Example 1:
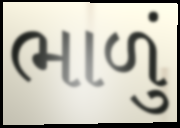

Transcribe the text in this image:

ભાળું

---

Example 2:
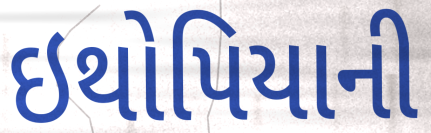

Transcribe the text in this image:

ઇથોપિયાની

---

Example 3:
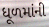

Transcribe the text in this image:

ધૂળમાંની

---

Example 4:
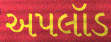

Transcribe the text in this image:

અપલૉડ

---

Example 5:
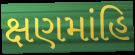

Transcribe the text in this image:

ક્ષણમાંહિ